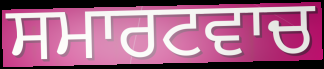
ਸਮਾਰਟਵਾਚ